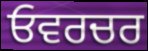
ਓਵਰਚਰ